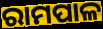
ରାମପାଳ